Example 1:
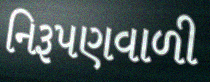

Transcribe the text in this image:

નિરૂપણવાળી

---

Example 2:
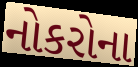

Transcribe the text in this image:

નોકરોના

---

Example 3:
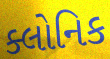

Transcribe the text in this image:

ક્લોનિક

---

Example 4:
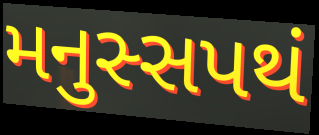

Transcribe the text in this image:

મનુસ્સપથં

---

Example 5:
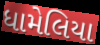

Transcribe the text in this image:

ધામેલિયા